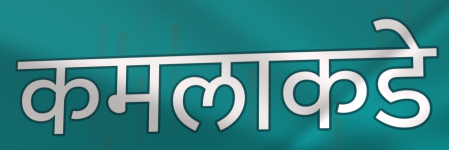
कमलाकडे